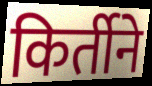
किर्तीने